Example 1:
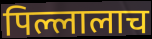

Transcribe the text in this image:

पिल्लालाच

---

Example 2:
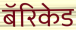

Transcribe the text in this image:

बॅरिकेड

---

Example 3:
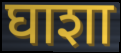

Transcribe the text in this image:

घाशा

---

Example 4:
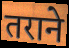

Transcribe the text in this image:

तराने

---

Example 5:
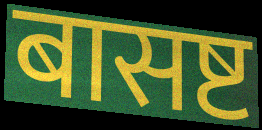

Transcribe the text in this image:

बासष्ट